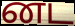
னட